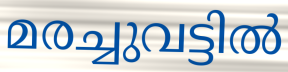
മരച്ചുവട്ടിൽ